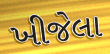
ખીજેલા